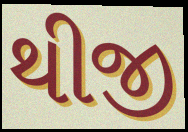
થીજી